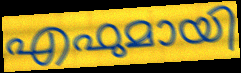
എഫുമായി